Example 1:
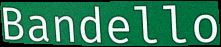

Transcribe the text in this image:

Bandello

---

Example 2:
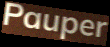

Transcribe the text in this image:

Pauper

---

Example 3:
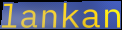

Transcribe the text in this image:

lankan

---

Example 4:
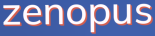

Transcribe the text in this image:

zenopus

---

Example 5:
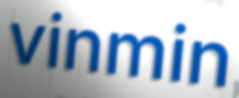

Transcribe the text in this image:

vinmin